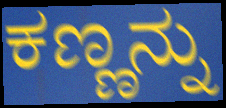
ಕಣ್ಣನ್ನು